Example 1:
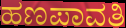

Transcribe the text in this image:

ಹಣಪಾವತಿ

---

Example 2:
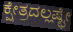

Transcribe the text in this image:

ಕ್ಷೇತ್ರದಲ್ಲಷ್ಟೇ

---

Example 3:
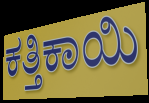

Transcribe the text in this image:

ಕತ್ತಿಕಾಯಿ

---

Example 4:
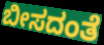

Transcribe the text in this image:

ಬೀಸದಂತೆ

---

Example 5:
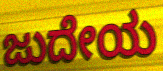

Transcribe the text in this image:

ಜುದೇಯ